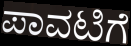
ಪಾವಟಿಗೆ